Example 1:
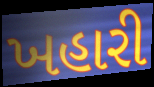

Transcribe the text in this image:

ખહારી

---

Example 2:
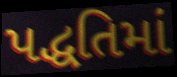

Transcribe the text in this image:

પદ્ધતિમાં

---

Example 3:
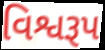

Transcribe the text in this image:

વિશ્વરૂપ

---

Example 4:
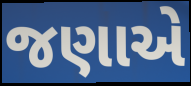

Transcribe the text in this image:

જણાએ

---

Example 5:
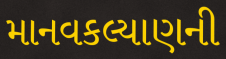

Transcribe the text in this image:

માનવકલ્યાણની